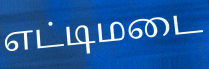
எட்டிமடை